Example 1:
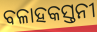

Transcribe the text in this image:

ବଳାହକସ୍ତନୀ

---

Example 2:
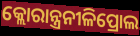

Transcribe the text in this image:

କ୍ଲୋରାନ୍ତ୍ରନୀଳିପ୍ରୋଲ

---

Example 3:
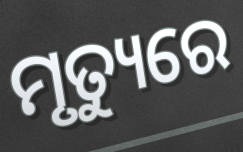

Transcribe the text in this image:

ମୃତ୍ୟୁରେ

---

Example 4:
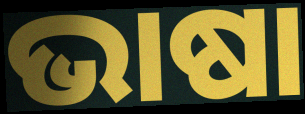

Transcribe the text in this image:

ଭାଷା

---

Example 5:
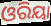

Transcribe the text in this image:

ଓରିୟା